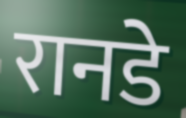
रानडे